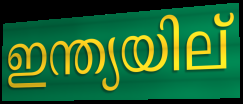
ഇന്ത്യയില്